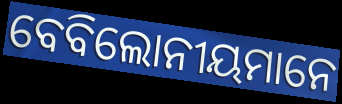
ବେବିଲୋନୀୟମାନେ